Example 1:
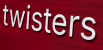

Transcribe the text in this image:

twisters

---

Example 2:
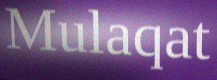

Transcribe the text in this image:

Mulaqat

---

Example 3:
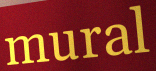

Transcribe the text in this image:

mural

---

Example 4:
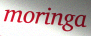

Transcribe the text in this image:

moringa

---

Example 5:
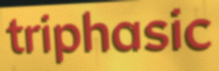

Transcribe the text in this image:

triphasic